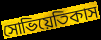
সোভিয়েতিকাস